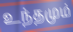
உந்தமும்